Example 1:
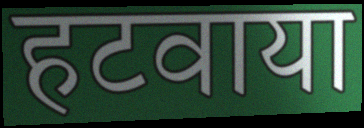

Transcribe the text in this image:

हटवाया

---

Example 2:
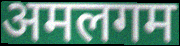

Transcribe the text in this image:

अमलगम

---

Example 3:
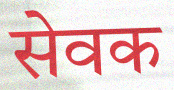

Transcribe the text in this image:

सेवक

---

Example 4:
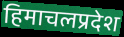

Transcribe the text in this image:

हिमाचलप्रदेश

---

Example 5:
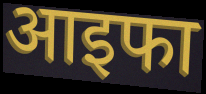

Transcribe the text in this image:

आइफा